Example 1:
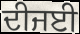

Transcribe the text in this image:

ਦੀਜਈ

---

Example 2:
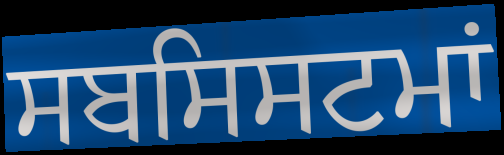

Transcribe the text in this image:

ਸਬਸਿਸਟਮਾਂ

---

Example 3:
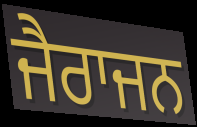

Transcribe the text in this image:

ਜੈਰਾਜਨ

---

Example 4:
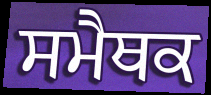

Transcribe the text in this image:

ਸਮੈਥਕ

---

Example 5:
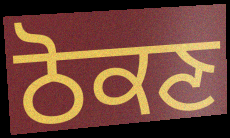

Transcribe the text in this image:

ਠੋਕਣ